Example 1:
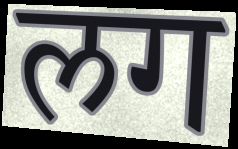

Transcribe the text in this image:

लग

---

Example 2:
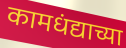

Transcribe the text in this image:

कामधंद्याच्या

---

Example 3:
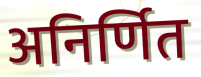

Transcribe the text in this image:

अनिर्णित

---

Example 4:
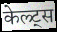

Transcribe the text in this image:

केल्ट्स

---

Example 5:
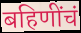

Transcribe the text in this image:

बहिणींचं